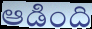
ఆడింది